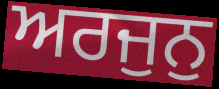
ਅਰਜੁਨੁ